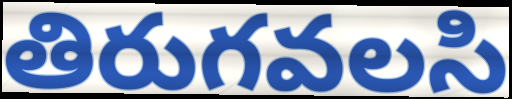
తిరుగవలసి